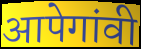
आपेगांवी